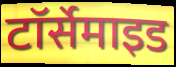
टॉर्सेमाइड